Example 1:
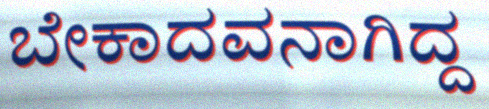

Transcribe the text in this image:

ಬೇಕಾದವನಾಗಿದ್ದ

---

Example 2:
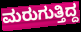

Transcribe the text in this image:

ಮರುಗುತ್ತಿದ್ದ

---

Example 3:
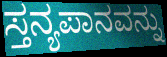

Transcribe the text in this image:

ಸ್ತನ್ಯಪಾನವನ್ನು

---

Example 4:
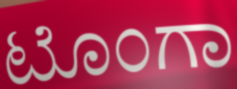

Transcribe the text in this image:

ಟೊಂಗಾ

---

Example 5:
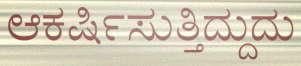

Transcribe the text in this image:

ಆಕರ್ಷಿಸುತ್ತಿದ್ದುದು